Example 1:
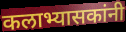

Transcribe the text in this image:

कलाभ्यासकांनी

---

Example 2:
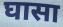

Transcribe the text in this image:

घासा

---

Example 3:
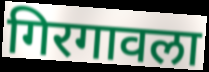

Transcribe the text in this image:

गिरगावला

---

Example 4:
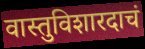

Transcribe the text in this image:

वास्तुविशारदाचं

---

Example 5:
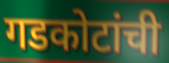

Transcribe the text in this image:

गडकोटांची